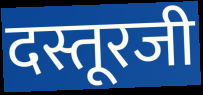
दस्तूरजी